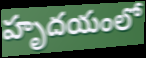
హృదయంలో